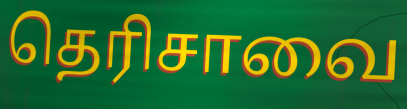
தெரிசாவை